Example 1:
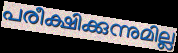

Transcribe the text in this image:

പരീക്ഷിക്കുന്നുമില്ല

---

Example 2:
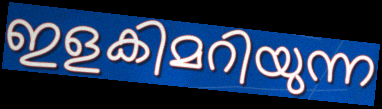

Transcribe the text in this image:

ഇളകിമറിയുന്ന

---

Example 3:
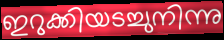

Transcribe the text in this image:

ഇറുക്കിയടച്ചുനിന്നു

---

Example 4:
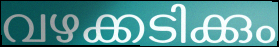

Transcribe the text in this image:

വഴക്കടിക്കും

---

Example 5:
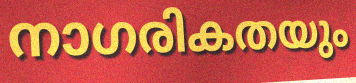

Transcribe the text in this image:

നാഗരികതയും